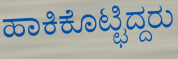
ಹಾಕಿಕೊಟ್ಟಿದ್ದರು